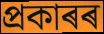
প্ৰকাৰৰ